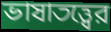
ভাষাতত্ত্বের